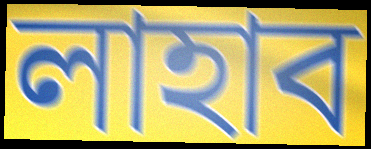
লাহাব